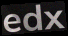
edx